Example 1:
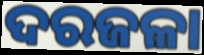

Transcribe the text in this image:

ଦରଜଳା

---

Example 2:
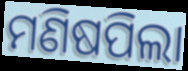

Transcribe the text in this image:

ମଣିଷପିଲା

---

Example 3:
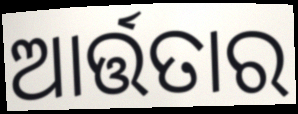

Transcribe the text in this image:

ଆର୍ତ୍ତତାର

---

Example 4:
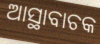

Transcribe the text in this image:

ଆସ୍ଥାବାଚକ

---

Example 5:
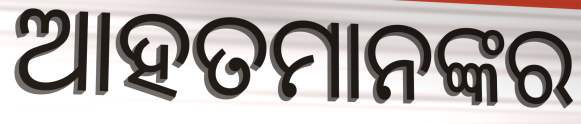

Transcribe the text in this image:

ଆହତମାନଙ୍କର